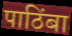
पाठिंबा